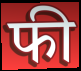
फी